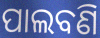
ପାଲବଣି